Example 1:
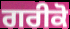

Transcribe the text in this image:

ਗਰੀਕੋ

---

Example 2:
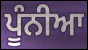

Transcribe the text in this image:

ਪੂੰਨੀਆ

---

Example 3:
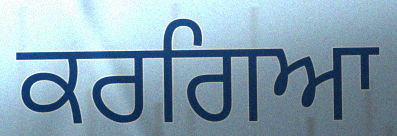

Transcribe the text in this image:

ਕਰਗਿਆ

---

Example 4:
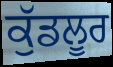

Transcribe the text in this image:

ਕੁੱਡਲੂਰ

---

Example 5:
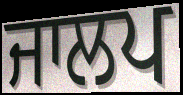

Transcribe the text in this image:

ਜਾਲਪ